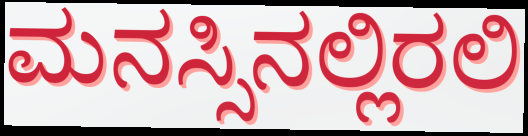
ಮನಸ್ಸಿನಲ್ಲಿರಲಿ